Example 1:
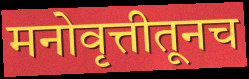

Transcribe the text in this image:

मनोवृत्तीतूनच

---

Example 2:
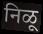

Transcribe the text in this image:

निळू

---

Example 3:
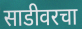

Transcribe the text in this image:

साडीवरचा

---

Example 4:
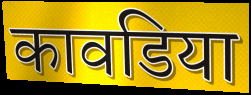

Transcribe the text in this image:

कावडिया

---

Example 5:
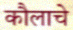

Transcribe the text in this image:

कौलाचे